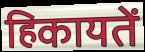
हिकायतें